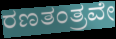
ರಣತಂತ್ರವೇ